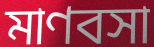
মাণবসা